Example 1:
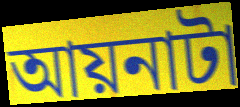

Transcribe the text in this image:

আয়নাটা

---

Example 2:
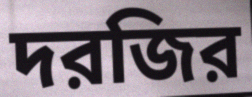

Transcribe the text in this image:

দরজির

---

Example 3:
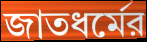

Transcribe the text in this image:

জাতধর্মের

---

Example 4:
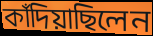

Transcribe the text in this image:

কাঁদিয়াছিলেন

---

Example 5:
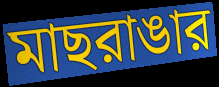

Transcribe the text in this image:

মাছরাঙার